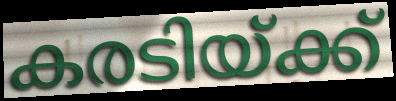
കരടിയ്ക്ക്